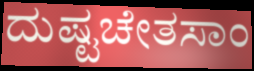
ದುಷ್ಟಚೇತಸಾಂ